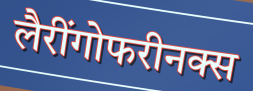
लैरींगोफरीनक्स